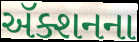
ઍક્શનના